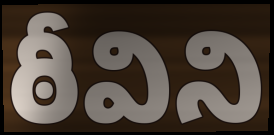
ఠీవిని